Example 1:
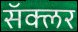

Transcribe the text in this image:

सॅक्लर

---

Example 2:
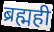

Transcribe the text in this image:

ब्रह्मही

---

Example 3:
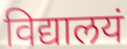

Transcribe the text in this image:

विद्यालयं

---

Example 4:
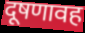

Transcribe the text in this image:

दूषणावह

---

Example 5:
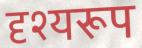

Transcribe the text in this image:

दृश्यरूप